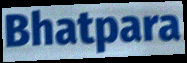
Bhatpara